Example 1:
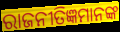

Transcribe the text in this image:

ରାଜନୀତିଜ୍ଞମାନଙ୍କ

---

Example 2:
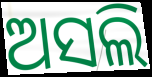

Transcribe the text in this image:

ଅସଲି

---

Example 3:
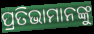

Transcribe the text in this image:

ପ୍ରତିଭାମାନଙ୍କୁ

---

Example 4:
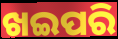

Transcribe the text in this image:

ଖଇପରି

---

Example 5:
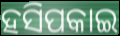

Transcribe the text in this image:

ହସିପକାଇ